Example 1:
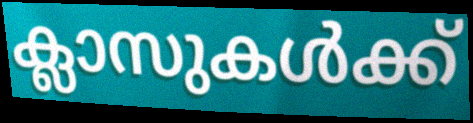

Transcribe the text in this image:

ക്ലാസുകൾക്ക്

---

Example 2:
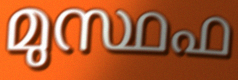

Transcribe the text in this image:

മുസ്ഥഫ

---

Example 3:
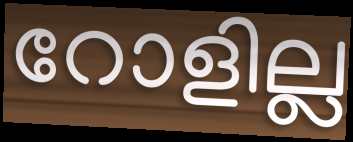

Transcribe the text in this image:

റോളില്ല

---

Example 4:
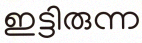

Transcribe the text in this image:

ഇട്ടിരുന്ന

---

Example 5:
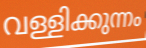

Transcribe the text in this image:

വള്ളിക്കുന്നം